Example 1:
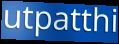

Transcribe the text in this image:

utpatthi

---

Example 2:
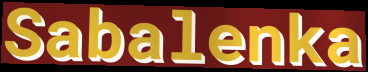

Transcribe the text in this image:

Sabalenka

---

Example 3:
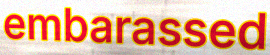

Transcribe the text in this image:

embarassed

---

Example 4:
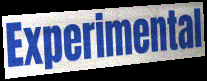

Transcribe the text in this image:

Experimental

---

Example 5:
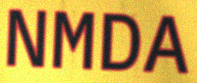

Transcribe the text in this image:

NMDA